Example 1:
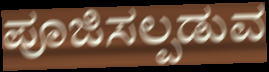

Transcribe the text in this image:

ಪೂಜಿಸಲ್ಪಡುವ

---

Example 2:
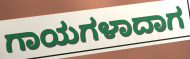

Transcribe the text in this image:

ಗಾಯಗಳಾದಾಗ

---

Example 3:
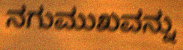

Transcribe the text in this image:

ನಗುಮುಖವನ್ನು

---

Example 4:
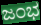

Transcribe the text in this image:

ಜಂಭ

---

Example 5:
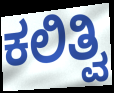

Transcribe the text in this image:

ಕಲಿತ್ವಿ